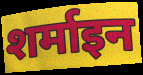
शर्माइन